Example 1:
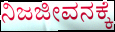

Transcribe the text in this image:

ನಿಜಜೀವನಕ್ಕೆ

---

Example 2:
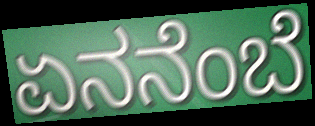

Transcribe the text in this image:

ಏನನೆಂಬೆ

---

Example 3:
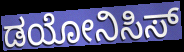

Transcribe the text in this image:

ಡಯೋನಿಸಿಸ್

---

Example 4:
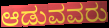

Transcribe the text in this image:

ಆಡುವವರು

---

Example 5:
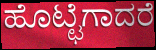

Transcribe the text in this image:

ಹೊಟ್ಟೆಗಾದರೆ